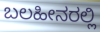
ಬಲಹೀನರಲ್ಲಿ